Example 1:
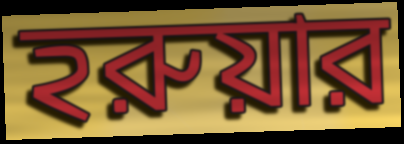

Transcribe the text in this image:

হরুয়ার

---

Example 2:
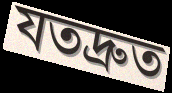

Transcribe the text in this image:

যতদ্রুত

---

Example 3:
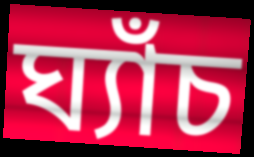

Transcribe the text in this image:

ঘ্যাঁচ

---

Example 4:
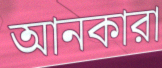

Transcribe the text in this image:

আনকারা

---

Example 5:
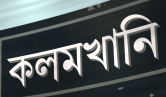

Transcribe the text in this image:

কলমখানি